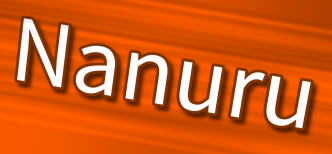
Nanuru